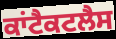
ਕਾਂਟੈਕਟਲੈਸ